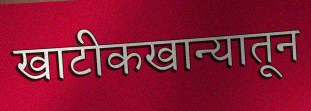
खाटीकखान्यातून